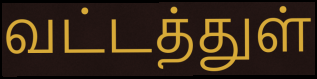
வட்டத்துள்